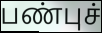
பண்புச்